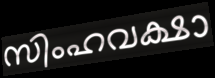
സിംഹവക്ഷാ